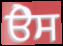
ੳੇਸ